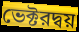
ভেক্টরদ্বয়